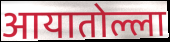
आयातोल्ला